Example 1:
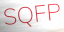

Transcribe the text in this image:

SQFP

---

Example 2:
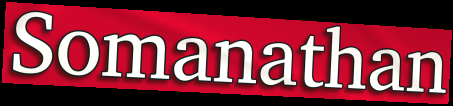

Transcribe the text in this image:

Somanathan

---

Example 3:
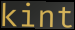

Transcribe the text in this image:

kint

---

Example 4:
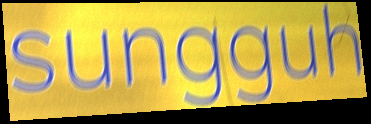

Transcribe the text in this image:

sungguh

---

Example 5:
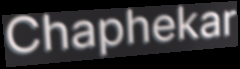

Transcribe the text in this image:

Chaphekar